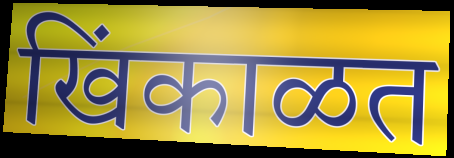
खिंकाळत